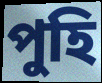
পুহি